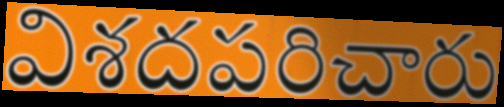
విశదపరిచారు